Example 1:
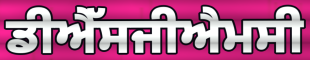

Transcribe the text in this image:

ਡੀਐੱਸਜੀਐਮਸੀ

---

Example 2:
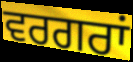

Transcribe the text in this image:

ਵਰਗਰਾਂ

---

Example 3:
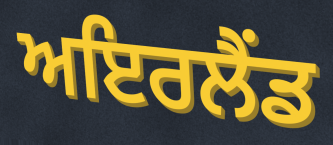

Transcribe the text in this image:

ਅਇਰਲੈਂਡ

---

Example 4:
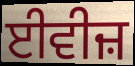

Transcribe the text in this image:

ਈਵੀਜ਼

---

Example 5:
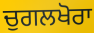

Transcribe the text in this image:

ਚੁਗਲਖੋਰਾ